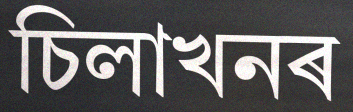
চিলাখনৰ